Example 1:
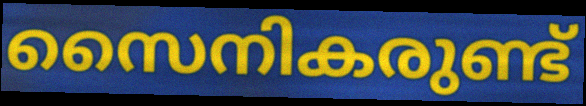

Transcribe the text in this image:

സൈനികരുണ്ട്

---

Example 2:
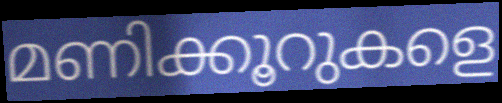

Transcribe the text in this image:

മണിക്കൂറുകളെ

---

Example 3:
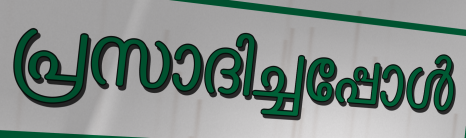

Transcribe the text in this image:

പ്രസാദിച്ചപ്പോൾ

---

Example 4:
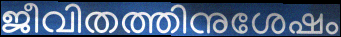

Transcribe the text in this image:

ജീവിതത്തിനുശേഷം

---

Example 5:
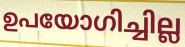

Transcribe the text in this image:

ഉപയോഗിച്ചില്ല